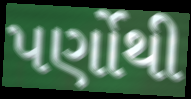
પર્ણોથી